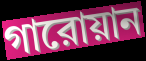
গারোয়ান